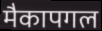
मैकापगल